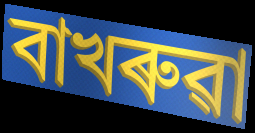
বাখৰুৱা